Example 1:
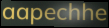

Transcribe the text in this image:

aapechhe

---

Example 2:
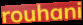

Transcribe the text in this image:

rouhani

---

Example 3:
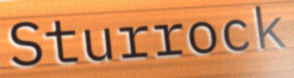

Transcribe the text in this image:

Sturrock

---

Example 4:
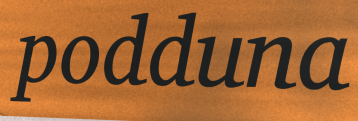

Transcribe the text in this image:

podduna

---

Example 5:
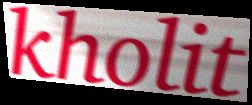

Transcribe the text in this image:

kholit